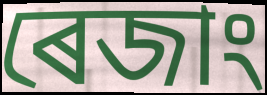
ৰেজাং